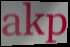
akp